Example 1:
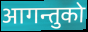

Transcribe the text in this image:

आगन्तुको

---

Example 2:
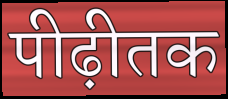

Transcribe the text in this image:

पीढ़ीतक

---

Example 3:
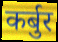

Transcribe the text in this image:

कर्बुर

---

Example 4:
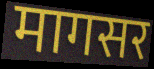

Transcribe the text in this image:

मागसर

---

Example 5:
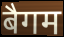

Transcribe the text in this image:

बैगम